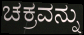
ಚಕ್ರವನ್ನು